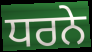
ਧਰਨੇ